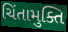
ચિંતામુક્તિ